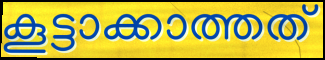
കൂട്ടാക്കാത്തത്